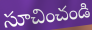
సూచించండి